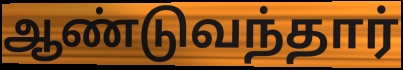
ஆண்டுவந்தார்